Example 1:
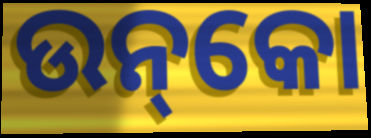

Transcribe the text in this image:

ଉନ୍‌କୋ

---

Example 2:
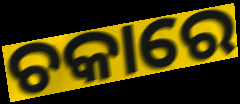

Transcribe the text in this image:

ଚକାରେ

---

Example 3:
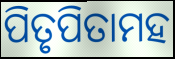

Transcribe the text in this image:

ପିତୃପିତାମହ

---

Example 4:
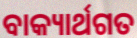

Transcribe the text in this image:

ବାକ୍ୟାର୍ଥଗତ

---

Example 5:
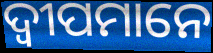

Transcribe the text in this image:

ଦ୍ୱୀପମାନେ